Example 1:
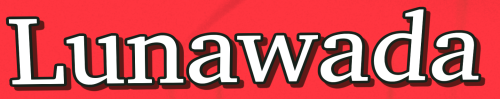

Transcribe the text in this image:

Lunawada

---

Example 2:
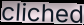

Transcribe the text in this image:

cliched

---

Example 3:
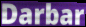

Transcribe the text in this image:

Darbar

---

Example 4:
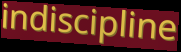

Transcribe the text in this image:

indiscipline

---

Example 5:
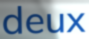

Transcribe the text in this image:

deux